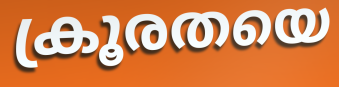
ക്രൂരതയെ